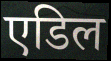
एडिल